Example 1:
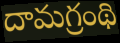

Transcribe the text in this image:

దామగ్రంథి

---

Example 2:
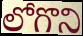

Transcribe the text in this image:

లోగొని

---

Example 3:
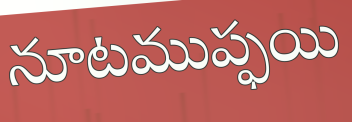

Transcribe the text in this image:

నూటముప్ఫయి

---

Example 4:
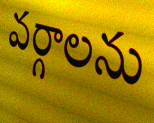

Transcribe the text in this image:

వర్గాలను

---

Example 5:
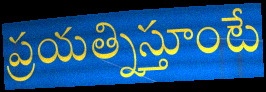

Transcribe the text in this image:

ప్రయత్నిస్తూంటే